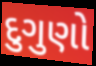
દુગુણો